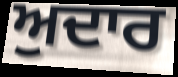
ਅੁਦਾਰ